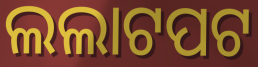
ଲଲାଟପଟ